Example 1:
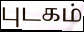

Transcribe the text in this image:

புடகம்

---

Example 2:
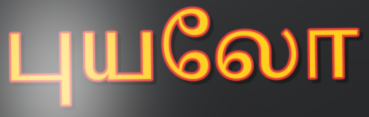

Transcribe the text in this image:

புயலோ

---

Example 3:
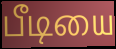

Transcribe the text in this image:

பீடியை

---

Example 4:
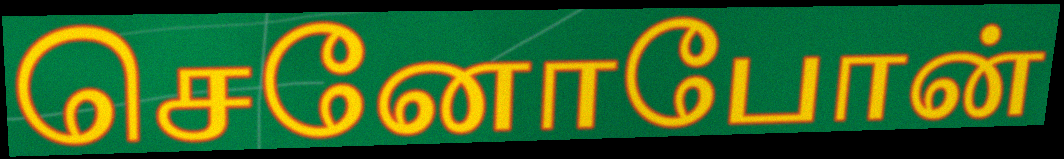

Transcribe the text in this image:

செனோபோன்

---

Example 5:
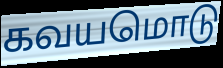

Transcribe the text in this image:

கவயமொடு